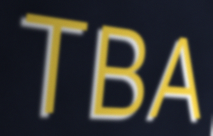
TBA